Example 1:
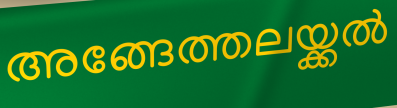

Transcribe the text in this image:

അങ്ങേത്തലയ്ക്കൽ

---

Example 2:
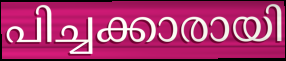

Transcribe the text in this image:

പിച്ചക്കാരായി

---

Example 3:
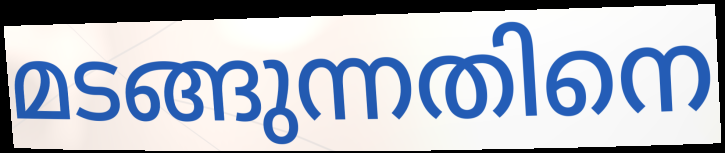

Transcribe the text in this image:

മടങ്ങുന്നതിനെ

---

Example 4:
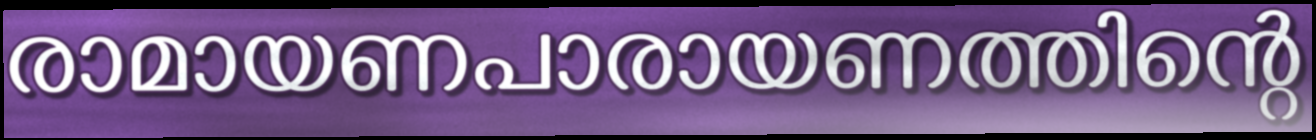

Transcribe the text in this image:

രാമായണപാരായണത്തിന്റെ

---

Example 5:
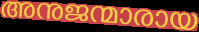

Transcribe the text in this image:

അനുജന്മാരായ